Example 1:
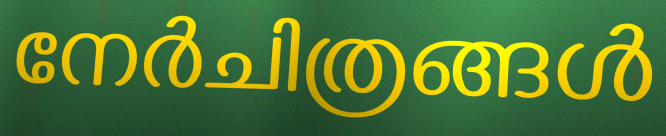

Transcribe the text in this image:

നേർചിത്രങ്ങൾ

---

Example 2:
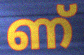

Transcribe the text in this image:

ണ്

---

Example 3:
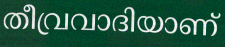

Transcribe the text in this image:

തീവ്രവാദിയാണ്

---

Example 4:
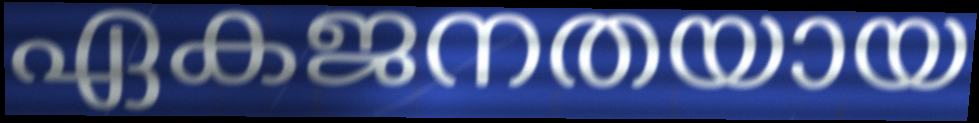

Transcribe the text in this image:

ഏകജനതയായ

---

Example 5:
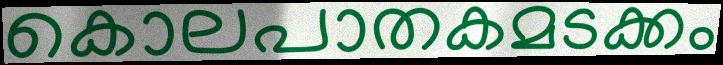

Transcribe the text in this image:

കൊലപാതകമടക്കം